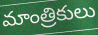
మాంత్రికులు